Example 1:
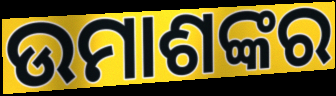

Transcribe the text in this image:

ଉମାଶଙ୍କର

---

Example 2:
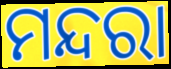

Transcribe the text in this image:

ମନ୍ଦରା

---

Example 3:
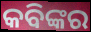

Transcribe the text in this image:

କବିଙ୍କର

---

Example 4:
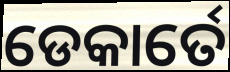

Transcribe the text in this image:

ଡେକାର୍ତେ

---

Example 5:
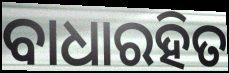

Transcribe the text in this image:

ବାଧାରହିତ